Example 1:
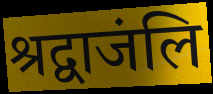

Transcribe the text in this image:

श्रद्वाजंलि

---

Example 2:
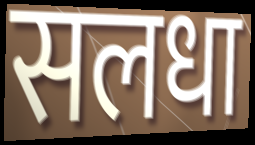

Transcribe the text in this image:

सलधा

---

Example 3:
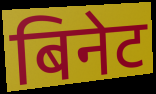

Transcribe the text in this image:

बिनेट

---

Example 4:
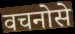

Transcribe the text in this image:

वचनोसे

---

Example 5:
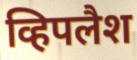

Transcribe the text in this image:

व्हिपलैश